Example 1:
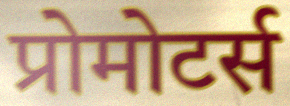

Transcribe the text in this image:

प्रोमोटर्स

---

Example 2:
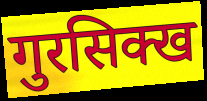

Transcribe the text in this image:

गुरसिक्ख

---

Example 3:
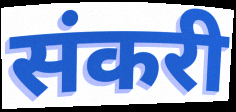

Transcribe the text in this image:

संकरी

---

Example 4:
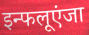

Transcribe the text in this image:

इन्फलूएंजा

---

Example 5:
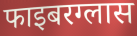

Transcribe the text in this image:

फाइबरग्लास